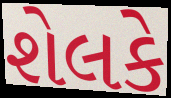
શેલકે